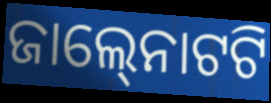
ଜାଲ୍‍ନୋଟଟି